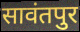
सावंतपुर